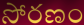
సోరణం